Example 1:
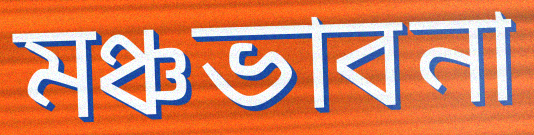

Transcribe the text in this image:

মঞ্চভাবনা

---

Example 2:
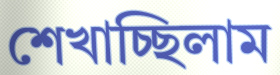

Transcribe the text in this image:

শেখাচ্ছিলাম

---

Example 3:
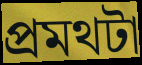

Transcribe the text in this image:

প্রমথটা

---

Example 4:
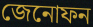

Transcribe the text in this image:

জেনোফন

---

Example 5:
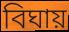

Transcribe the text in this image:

বিঘায়